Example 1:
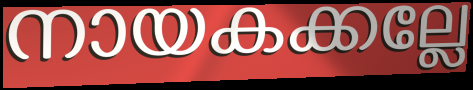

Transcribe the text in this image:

നായകക്കല്ലേ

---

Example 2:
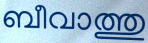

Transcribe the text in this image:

ബീവാത്തു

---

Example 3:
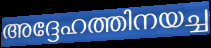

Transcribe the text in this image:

അദ്ദേഹത്തിനയച്ച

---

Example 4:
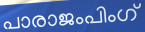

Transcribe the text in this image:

പാരാജംപിംഗ്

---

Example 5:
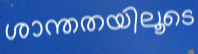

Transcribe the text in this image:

ശാന്തതയിലൂടെ